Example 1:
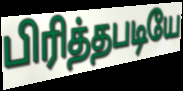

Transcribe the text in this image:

பிரித்தபடியே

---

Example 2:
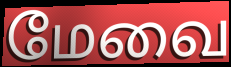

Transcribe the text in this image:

மேவை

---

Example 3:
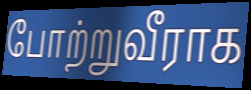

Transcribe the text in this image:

போற்றுவீராக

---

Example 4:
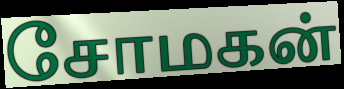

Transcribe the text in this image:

சோமகன்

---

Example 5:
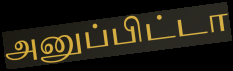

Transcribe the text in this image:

அனுப்பிட்டா